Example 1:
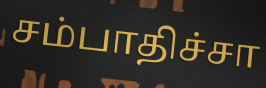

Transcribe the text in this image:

சம்பாதிச்சா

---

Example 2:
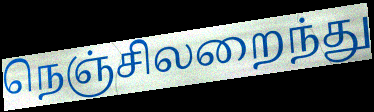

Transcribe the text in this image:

நெஞ்சிலறைந்து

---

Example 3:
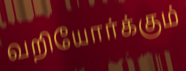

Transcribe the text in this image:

வறியோர்க்கும்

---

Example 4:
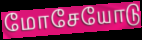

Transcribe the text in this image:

மோசேயோடு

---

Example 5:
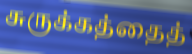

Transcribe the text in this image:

சுருக்கத்தைத்